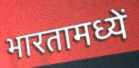
भारतामध्यें